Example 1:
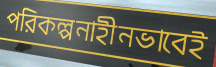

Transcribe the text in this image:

পরিকল্পনাহীনভাবেই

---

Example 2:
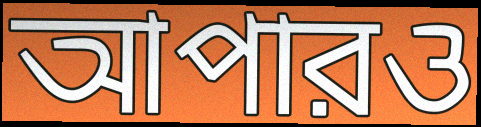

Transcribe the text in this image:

আপারও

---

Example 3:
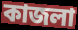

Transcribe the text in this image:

কাজলা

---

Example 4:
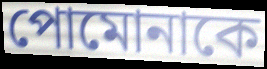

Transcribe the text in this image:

পোমোনাকে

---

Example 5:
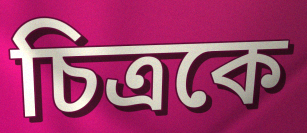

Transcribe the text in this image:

চিত্রকে